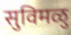
सुविमळु